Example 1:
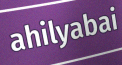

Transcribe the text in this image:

ahilyabai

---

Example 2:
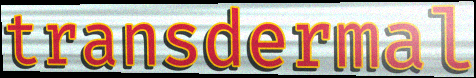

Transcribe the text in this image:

transdermal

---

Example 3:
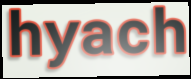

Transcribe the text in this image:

hyach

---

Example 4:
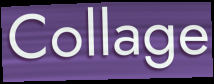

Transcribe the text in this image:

Collage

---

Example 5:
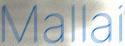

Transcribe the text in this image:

Mallai